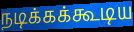
நடிக்கக்கூடிய